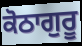
ਕੋਠਾਗੁਰੂ